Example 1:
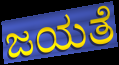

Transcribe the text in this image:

ಜಯತೆ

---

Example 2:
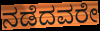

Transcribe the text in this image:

ನಡೆದವರೇ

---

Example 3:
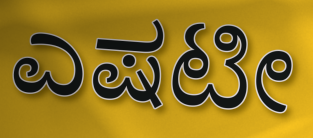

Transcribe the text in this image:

ಎಷಟೀ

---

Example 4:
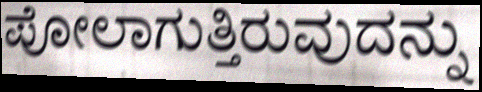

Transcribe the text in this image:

ಪೋಲಾಗುತ್ತಿರುವುದನ್ನು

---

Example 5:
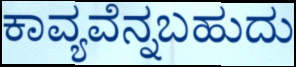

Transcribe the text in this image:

ಕಾವ್ಯವೆನ್ನಬಹುದು